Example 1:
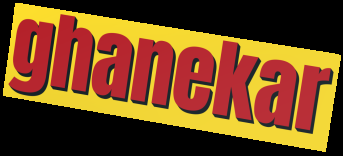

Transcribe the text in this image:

ghanekar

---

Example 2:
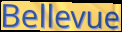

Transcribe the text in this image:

Bellevue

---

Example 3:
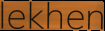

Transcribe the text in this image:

lekhen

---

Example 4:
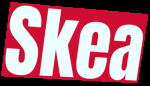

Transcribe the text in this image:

Skea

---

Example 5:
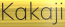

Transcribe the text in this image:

Kakaji